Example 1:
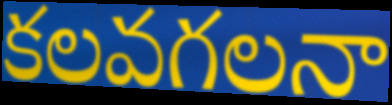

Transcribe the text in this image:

కలవగలనా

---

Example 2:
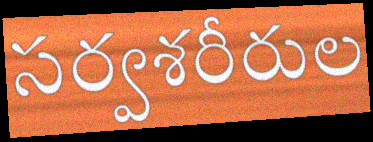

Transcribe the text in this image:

సర్వశరీరుల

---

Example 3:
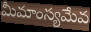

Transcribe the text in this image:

మీమాంస్యమేవ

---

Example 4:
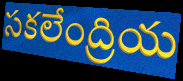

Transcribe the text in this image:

సకలేంద్రియ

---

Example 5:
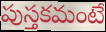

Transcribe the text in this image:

పుస్తకమంటే